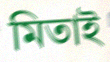
মিতাই